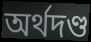
অর্থদণ্ড